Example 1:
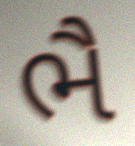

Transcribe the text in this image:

ભૈ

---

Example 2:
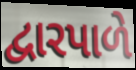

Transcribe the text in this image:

દ્વારપાળે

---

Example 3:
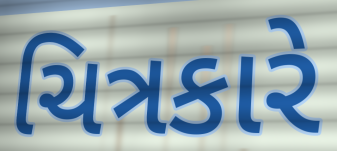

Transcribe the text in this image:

ચિત્રકારે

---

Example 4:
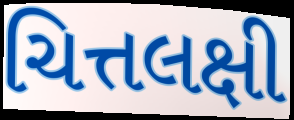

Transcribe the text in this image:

ચિત્તલક્ષી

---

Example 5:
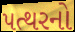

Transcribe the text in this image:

પત્થરનો